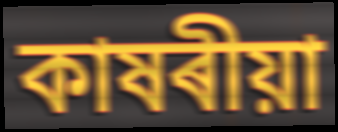
কাষৰীয়া